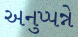
અનુપ્પન્ને